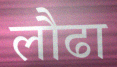
लौढा